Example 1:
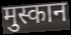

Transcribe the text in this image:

मुस्कान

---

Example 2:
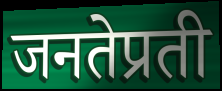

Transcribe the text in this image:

जनतेप्रती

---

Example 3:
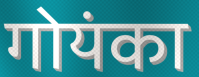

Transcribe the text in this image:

गोयंका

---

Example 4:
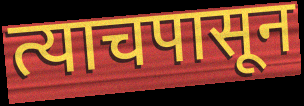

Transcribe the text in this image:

त्याचपासून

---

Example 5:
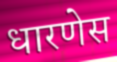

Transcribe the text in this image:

धारणेस